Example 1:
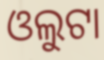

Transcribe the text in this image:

ଓଲୁଟା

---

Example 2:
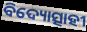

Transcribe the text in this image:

ବିଦ୍ୟୋତ୍ସାହୀ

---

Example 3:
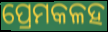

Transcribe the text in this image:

ପ୍ରେମକଳହ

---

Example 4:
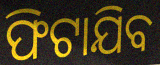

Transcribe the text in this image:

ଫିଟାଯିବ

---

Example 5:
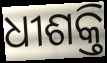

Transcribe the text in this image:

ଧୀଶକ୍ତି